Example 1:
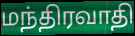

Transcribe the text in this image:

மந்திரவாதி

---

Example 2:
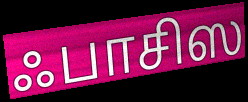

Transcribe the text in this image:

ஃபாசிஸ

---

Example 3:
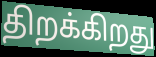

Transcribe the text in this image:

திறக்கிறது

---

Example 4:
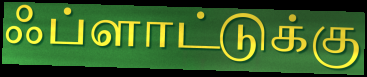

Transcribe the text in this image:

ஃப்ளாட்டுக்கு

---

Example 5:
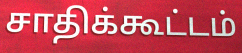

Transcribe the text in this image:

சாதிக்கூட்டம்